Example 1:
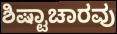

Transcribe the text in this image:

ಶಿಷ್ಟಾಚಾರವು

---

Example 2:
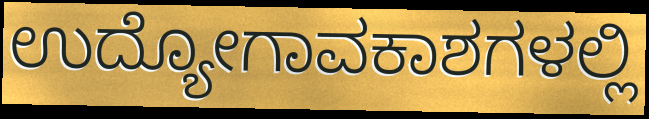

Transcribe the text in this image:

ಉದ್ಯೋಗಾವಕಾಶಗಳಲ್ಲಿ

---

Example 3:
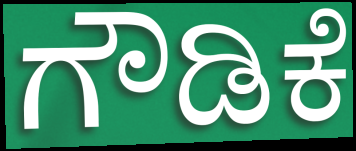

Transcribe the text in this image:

ಗೌಡಿಕೆ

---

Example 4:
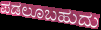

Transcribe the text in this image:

ಪಡಲೂಬಹುದು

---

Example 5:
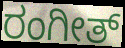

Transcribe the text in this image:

ರಂಗೀತ್